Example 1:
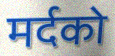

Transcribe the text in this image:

मर्दको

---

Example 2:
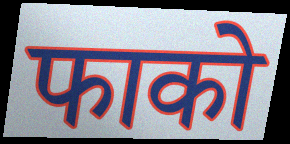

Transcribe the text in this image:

फाको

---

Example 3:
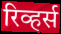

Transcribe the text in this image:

रिव्हर्स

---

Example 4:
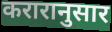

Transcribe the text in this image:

करारानुसार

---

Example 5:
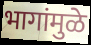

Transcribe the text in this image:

भागांमुळे